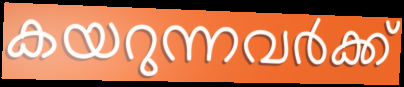
കയറുന്നവർക്ക്